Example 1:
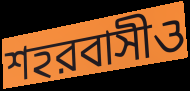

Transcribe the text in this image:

শহরবাসীও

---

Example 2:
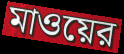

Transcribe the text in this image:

মাওয়ের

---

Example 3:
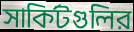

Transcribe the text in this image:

সার্কিটগুলির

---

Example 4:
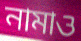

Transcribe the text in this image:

নামাও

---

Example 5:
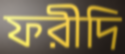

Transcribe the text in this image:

ফরীদি